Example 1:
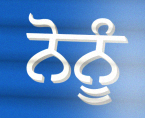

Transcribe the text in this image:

ਨੋਨੂੰ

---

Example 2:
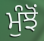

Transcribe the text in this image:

ਮੁੰਝੋਂ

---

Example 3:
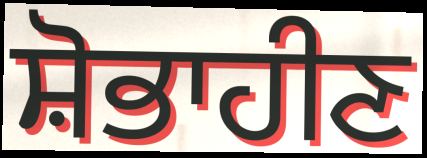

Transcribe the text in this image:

ਸ਼ੋਭਾਹੀਣ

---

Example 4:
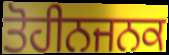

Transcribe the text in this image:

ਤੋਹੀਨਜਨਕ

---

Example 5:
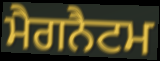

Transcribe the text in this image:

ਮੈਗਨੈਟਮ